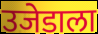
उजेडाला